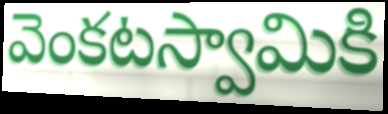
వెంకటస్వామికి